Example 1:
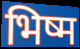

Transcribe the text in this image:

भिष्म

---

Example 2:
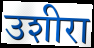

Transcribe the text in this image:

उशीरा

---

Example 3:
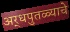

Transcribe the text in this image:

अर्धपुतळ्याचे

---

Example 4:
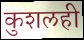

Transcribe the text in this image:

कुशलही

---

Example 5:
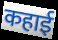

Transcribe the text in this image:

कहाई